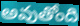
అవుతోంది